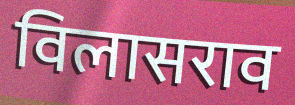
विलासराव